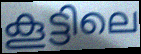
കൂട്ടിലെ